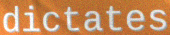
dictates